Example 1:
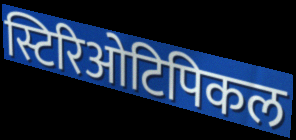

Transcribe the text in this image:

स्टिरिओटिपिकल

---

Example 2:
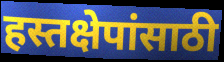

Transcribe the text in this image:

हस्तक्षेपांसाठी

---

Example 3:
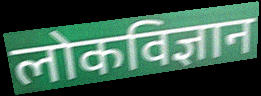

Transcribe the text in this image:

लोकविज्ञान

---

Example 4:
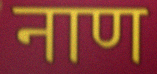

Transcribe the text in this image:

नाण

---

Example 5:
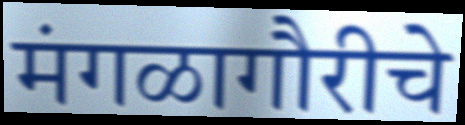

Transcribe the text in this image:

मंगळागौरीचे